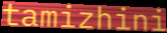
tamizhini